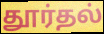
தூர்தல்